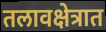
तलावक्षेत्रात